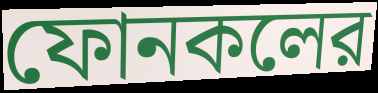
ফোনকলের